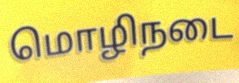
மொழிநடை